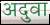
अदुवा